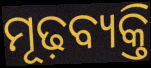
ମୂଢ଼ବ୍ୟକ୍ତି